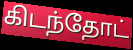
கிடந்தோட்